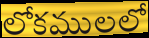
లోకములలో